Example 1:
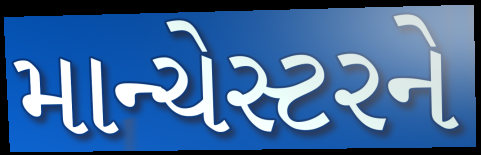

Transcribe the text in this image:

માન્ચેસ્ટરને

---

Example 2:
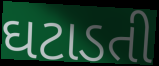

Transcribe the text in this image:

ઘટાડતી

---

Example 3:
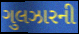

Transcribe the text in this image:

ગુલઝારની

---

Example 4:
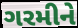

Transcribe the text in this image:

ગરમીને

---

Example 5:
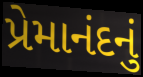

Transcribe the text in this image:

પ્રેમાનંદનું